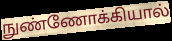
நுண்ணோக்கியால்